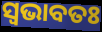
ସ୍ଵଭାବତଃ